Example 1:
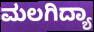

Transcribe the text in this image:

ಮಲಗಿದ್ಯಾ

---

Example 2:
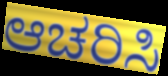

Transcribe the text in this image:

ಆಚರಿಸಿ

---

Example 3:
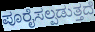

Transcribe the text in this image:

ಪೂರೈಸಲ್ಪಡುತ್ತದೆ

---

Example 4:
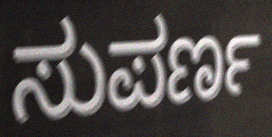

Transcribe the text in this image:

ಸುಪರ್ಣ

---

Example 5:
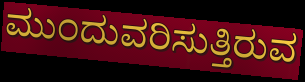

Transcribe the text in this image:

ಮುಂದುವರಿಸುತ್ತಿರುವ